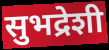
सुभद्रेशी